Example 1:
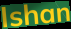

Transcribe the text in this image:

Ishan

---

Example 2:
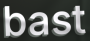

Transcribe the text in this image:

bast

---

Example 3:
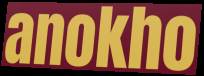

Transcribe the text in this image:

anokho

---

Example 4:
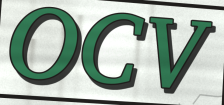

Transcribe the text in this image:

OCV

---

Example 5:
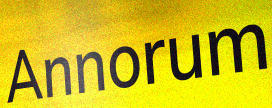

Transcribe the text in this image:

Annorum